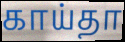
காய்தா